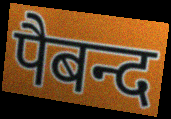
पैबन्द